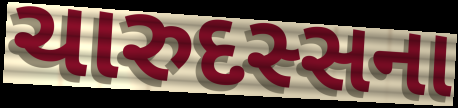
ચારુદસ્સના